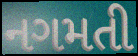
નગમતી